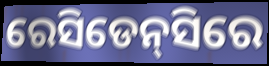
ରେସିଡେନ୍‌ସିରେ